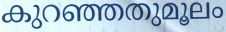
കുറഞ്ഞതുമൂലം